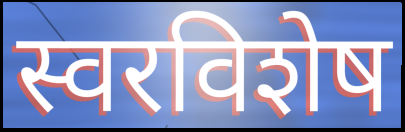
स्वरविशेष